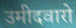
उमीदवारो